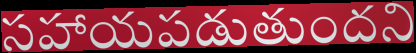
సహాయపడుతుందని